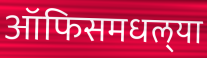
ऑफिसमधल्या